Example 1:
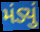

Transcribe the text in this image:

મંડ્યું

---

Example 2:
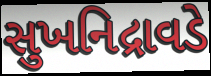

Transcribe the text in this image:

સુખનિદ્રાવડે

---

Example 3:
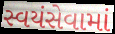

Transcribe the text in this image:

સ્વયંસેવામાં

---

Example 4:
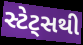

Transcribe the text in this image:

સ્ટેટ્સથી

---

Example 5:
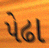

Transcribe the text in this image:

પેઢા